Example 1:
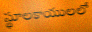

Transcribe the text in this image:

స్థూలకాయులలో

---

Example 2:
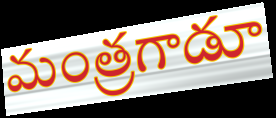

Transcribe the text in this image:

మంత్రగాడూ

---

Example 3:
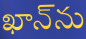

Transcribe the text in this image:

ఖాన్‌ను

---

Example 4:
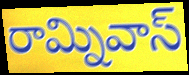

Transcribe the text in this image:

రామ్నివాస్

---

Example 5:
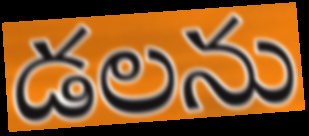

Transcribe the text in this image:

డలను